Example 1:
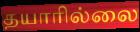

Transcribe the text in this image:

தயாரில்லை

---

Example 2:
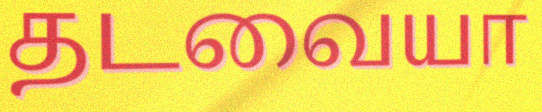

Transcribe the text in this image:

தடவையா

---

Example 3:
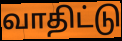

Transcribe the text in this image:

வாதிட்டு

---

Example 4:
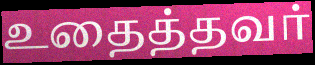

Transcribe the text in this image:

உதைத்தவர்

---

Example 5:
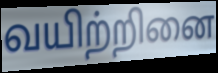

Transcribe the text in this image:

வயிற்றினை